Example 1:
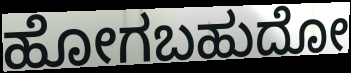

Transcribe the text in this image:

ಹೋಗಬಹುದೋ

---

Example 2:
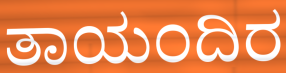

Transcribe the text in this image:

ತಾಯಂದಿರ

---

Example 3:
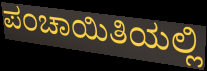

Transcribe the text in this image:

ಪಂಚಾಯಿತಿಯಲ್ಲಿ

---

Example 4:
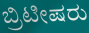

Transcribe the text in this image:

ಬ್ರಿಟೀಷರು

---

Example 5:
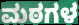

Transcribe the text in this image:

ಮಠಗಳ